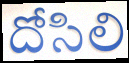
దోసిలి